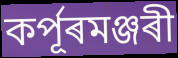
কৰ্পূৰমঞ্জৰী